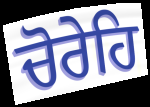
ਚੋਰੇਹਿ